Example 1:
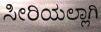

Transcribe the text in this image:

ಸೀರಿಯಲ್ಲಾಗಿ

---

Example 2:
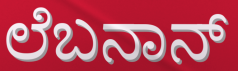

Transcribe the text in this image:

ಲೆಬನಾನ್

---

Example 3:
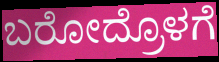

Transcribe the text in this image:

ಬರೋದ್ರೊಳಗೆ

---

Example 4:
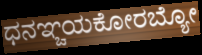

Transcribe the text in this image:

ಧನಞ್ಚಯಕೋರಬ್ಯೋ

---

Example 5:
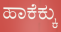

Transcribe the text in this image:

ಹಾಕೆಕ್ಕು